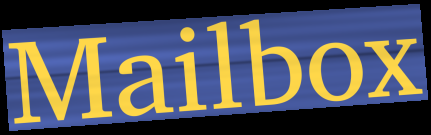
Mailbox